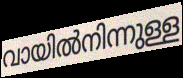
വായിൽനിന്നുള്ള